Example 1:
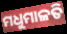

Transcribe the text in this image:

ମଧୁମାଳତି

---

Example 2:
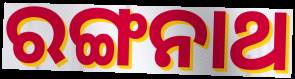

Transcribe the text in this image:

ରଙ୍ଗନାଥ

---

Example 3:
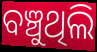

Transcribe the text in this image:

ବଞ୍ଚୁଥିଲି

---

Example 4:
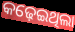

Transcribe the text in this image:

କଢ଼େଇଥିଲା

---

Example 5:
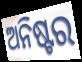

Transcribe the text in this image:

ଅନିଷ୍ଟର